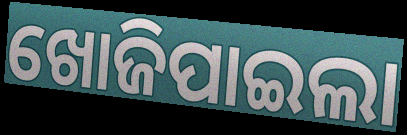
ଖୋଜିପାଇଲା